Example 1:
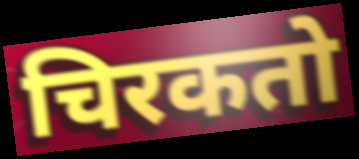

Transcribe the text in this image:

चिरकतो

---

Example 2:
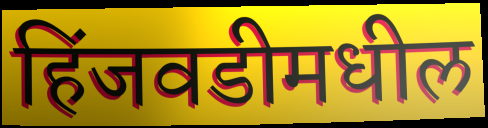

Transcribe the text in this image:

हिंजवडीमधील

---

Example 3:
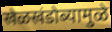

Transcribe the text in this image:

खेळखंडोब्यामुळे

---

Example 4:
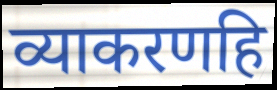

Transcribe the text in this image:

व्याकरणहि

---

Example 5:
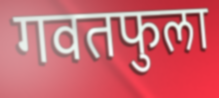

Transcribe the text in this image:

गवतफुला